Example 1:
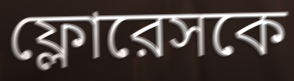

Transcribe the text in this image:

ফ্লোরেসকে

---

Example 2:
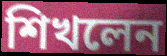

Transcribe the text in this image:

শিখলেন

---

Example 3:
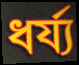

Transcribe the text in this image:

ধর্য্য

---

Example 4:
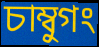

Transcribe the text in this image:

চাম্বুগং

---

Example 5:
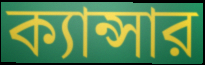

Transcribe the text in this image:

ক্যান্সার